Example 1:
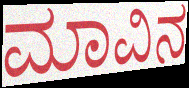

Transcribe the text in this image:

ಮಾವಿನ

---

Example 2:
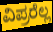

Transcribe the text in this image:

ವಿಪ್ರರೆಲ್ಲ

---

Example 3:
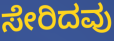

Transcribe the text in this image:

ಸೇರಿದವು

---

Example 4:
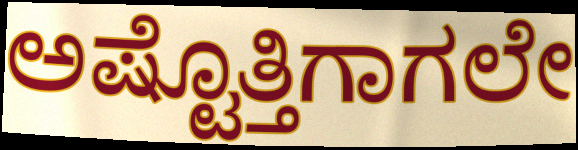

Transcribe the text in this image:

ಅಷ್ಟೊತ್ತಿಗಾಗಲೇ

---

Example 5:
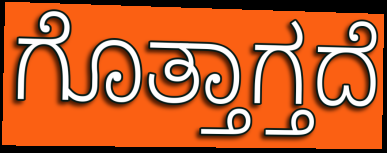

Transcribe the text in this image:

ಗೊತ್ತಾಗ್ತದೆ